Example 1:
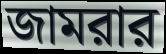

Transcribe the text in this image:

জামরার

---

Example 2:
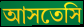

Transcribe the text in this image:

আসতেসি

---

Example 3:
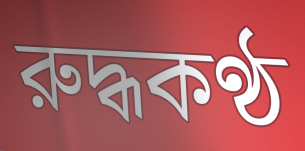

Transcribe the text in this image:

রুদ্ধকণ্ঠ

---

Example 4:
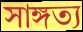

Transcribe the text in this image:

সাঙ্গত্য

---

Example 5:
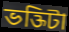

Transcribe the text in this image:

ভক্তিটা